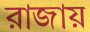
রাজায়